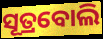
ସୂତ୍ରବୋଲି